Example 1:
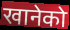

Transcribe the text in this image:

खानेको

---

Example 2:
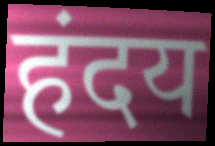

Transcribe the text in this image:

हंदय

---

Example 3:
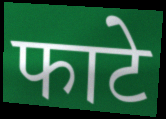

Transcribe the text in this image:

फाटे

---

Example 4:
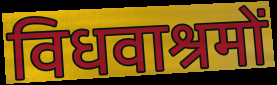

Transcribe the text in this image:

विधवाश्रमों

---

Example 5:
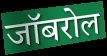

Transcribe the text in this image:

जॉबरोल